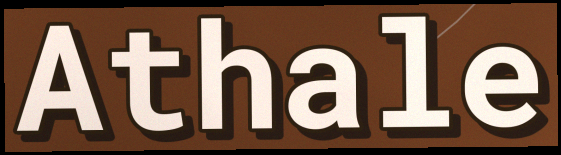
Athale